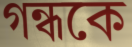
গন্ধকে